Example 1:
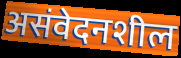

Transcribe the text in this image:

असंवेदनशील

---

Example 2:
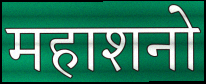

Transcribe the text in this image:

महाशनो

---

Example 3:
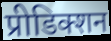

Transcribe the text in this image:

प्रीडिक्शन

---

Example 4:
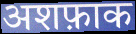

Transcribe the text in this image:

अशफ़ाक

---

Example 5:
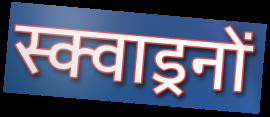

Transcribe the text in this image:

स्क्वाड्रनों